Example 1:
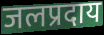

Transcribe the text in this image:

जलप्रदाय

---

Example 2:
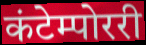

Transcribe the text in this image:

कंटेम्पोररी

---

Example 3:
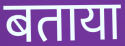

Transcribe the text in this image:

बताया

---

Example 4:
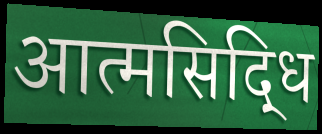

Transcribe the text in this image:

आत्मसिद्धि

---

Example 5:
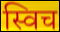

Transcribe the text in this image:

स्विच